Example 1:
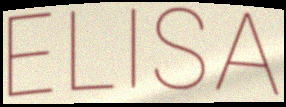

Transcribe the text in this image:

ELISA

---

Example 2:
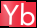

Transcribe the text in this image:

Yb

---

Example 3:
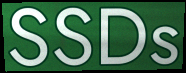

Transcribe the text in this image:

SSDs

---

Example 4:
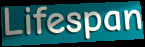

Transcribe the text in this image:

Lifespan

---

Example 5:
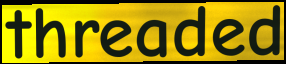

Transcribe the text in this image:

threaded